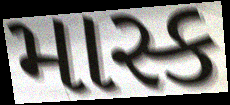
માસ્ક